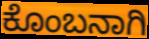
ಕೊಂಬನಾಗಿ